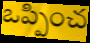
ఒప్పించ